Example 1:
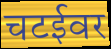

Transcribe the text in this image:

चटईवर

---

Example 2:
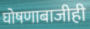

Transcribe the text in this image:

घोषणाबाजीही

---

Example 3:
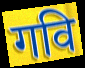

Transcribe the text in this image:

गवि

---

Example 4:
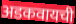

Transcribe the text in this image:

अडकवायची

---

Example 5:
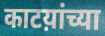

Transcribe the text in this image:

काटय़ांच्या